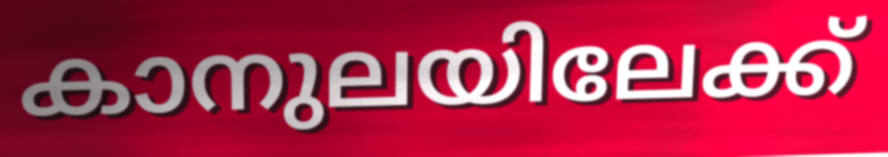
കാനുലയിലേക്ക്